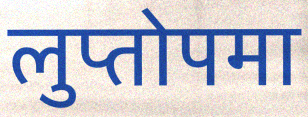
लुप्तोपमा